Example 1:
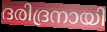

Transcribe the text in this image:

ദരിദ്രനായി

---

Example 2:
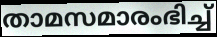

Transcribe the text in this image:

താമസമാരംഭിച്ച്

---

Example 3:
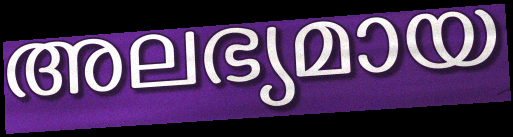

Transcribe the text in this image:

അലഭ്യമായ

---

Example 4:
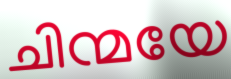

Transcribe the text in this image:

ചിന്മയേ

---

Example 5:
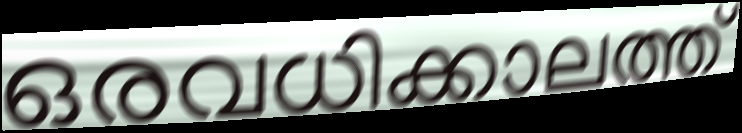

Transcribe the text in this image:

ഒരവധിക്കാലത്ത്